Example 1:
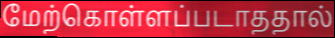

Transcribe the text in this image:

மேற்கொள்ளப்படாததால்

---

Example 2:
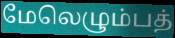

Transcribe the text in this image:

மேலெழும்பத்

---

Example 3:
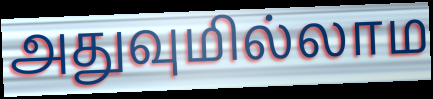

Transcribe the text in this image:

அதுவுமில்லாம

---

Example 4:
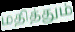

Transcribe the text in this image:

மதித்தும்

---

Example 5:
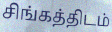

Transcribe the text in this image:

சிங்கத்திடம்